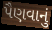
પૈણવાનું